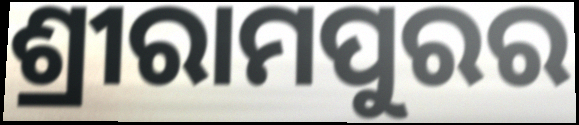
ଶ୍ରୀରାମପୁରର